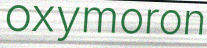
oxymoron